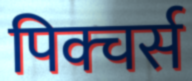
पिक्चर्स